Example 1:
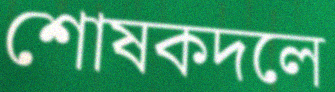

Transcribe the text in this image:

শোষকদলে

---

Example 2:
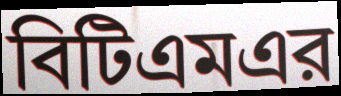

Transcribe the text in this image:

বিটিএমএর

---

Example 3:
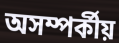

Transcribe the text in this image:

অসম্পর্কীয়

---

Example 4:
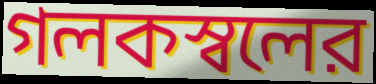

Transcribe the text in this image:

গলকস্বলের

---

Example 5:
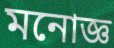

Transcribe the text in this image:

মনোজ্ঞ